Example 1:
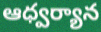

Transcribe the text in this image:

ఆధ్వర్యాన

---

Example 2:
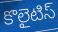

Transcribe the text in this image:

కొలైటిస్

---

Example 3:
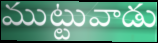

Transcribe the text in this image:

ముట్టువాడు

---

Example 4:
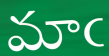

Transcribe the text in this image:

మాఁ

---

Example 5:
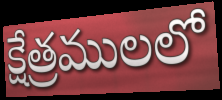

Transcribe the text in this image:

క్షేత్రములలో